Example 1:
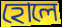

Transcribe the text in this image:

হোলে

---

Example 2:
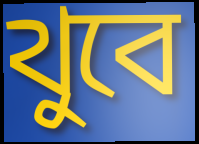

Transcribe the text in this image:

থুবে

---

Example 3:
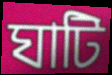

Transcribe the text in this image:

ঘাটি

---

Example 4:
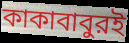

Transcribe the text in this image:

কাকাবাবুরই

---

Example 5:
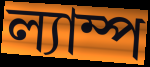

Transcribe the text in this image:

ল্যাম্প